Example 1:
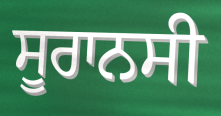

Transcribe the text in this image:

ਸੂਰਾਨਸੀ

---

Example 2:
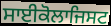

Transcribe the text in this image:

ਸਾਈਕੋਲਾਜਿਸਟ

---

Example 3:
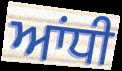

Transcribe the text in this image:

ਆਂਧੀ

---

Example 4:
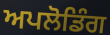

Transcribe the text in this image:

ਅਪਲੋਡਿੰਗ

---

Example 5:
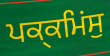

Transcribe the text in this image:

ਪਕ੍ਕਮਿਂਸੁ